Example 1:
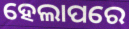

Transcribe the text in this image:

ହେଲାପରେ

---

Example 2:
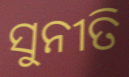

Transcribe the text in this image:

ସୁନୀତି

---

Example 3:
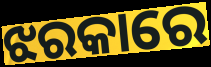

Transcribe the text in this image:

ଝରକାରେ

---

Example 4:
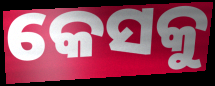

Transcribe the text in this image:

କେସକୁ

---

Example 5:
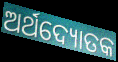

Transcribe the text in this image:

ଅର୍ଥଦ୍ୟୋତକ